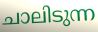
ചാലിടുന്ന